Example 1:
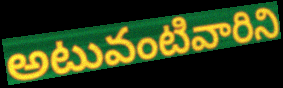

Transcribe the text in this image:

అటువంటివారిని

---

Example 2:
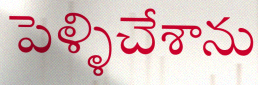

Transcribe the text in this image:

పెళ్ళిచేశాను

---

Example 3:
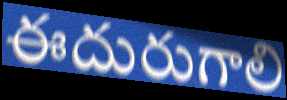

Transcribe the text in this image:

ఈదురుగాలి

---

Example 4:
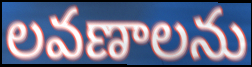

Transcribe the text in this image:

లవణాలను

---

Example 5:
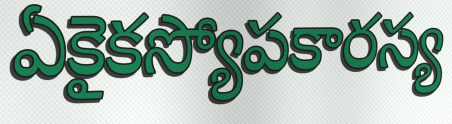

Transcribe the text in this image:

ఏకైకస్యోపకారస్య